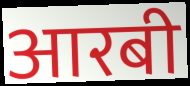
आरबी